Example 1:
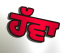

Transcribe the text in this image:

ਹੱਵਾ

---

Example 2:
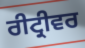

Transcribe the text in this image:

ਰੀਟ੍ਰੀਵਰ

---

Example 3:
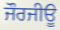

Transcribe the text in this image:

ਜੌਰਜੀਊ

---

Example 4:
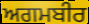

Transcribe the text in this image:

ਅਗਮਬੀਰ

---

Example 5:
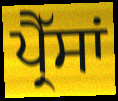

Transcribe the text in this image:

ਪ੍ਰੈੱਸਾਂ